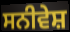
ਸਨੀਵੇਸ਼